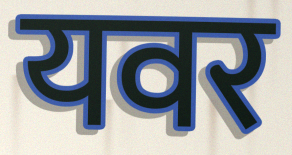
यवर